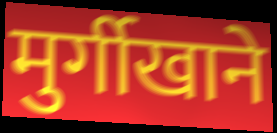
मुर्गीखाने